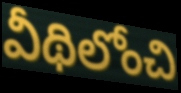
వీథిలోంచి